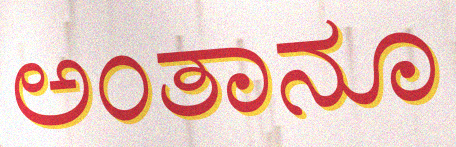
ಅಂತಾನೂ